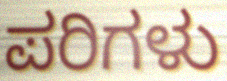
ಪರಿಗಳು